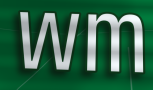
wm